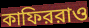
কাফিররাও